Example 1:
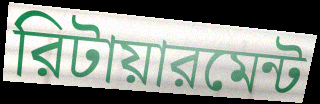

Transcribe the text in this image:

রিটায়ারমেন্ট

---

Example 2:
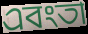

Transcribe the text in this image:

এবংতা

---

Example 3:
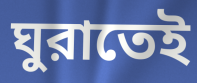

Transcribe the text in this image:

ঘুরাতেই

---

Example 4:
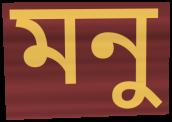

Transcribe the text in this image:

মনু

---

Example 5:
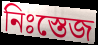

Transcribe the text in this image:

নিঃস্তেজ